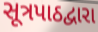
સૂત્રપાઠદ્વારા